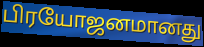
பிரயோஜனமானது